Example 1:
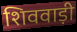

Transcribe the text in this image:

शिववाड़ी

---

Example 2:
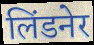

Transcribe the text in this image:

लिंडनेर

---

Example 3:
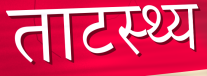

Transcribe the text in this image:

ताटस्थ्य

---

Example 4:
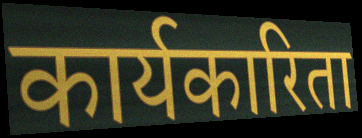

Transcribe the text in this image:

कार्यकारिता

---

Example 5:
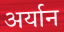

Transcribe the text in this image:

अर्यान